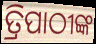
ତ୍ରିପାଠୀଙ୍କ